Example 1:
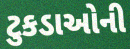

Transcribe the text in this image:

ટુકડાઓની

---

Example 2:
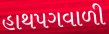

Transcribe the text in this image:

હાથપગવાળી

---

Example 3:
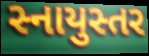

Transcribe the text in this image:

સ્નાયુસ્તર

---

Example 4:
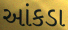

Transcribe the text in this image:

આંકડા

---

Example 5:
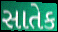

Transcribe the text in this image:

સાતેક